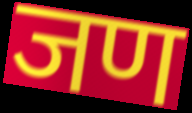
जण